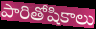
పారితోషికాలు